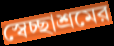
স্বেচ্ছাশ্রমের